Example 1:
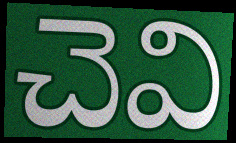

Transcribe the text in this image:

చెవి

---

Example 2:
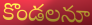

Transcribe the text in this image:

కొండలనూ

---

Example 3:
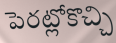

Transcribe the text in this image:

పెరట్లోకొచ్చి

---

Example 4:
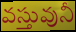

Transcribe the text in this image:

వస్తువునీ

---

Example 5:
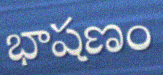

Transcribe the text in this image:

భాషణం